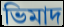
ভিমাদ